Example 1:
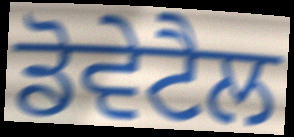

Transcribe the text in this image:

ਡੋਵੇਟੈਲ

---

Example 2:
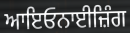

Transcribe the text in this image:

ਆਇਓਨਾਈਜ਼ਿੰਗ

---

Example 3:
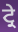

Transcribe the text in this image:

ਟ੍ਰੇ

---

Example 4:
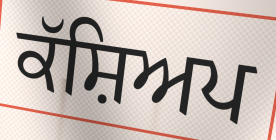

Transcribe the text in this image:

ਕੱਸ਼ਿਅਪ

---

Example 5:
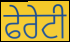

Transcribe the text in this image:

ਫੇਰੇਟੀ